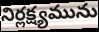
నిర్లక్ష్యమును